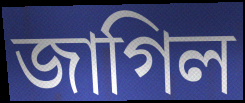
জাগিল